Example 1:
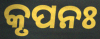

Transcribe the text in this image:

କୃପନଃ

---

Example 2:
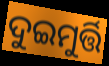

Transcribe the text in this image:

ଦୁଇମୁର୍ତ୍ତି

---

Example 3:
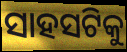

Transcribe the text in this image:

ସାହସଟିକୁ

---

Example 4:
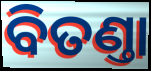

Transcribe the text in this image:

ବିତଣ୍ତା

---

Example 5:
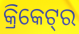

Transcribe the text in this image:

କ୍ରିକେଟ୍‌ର